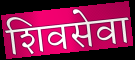
शिवसेवा